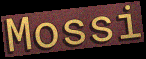
Mossi